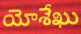
యోశేఖు